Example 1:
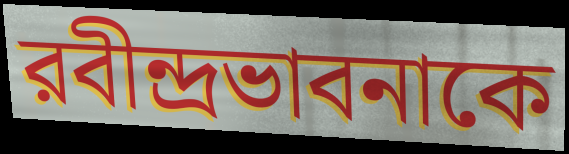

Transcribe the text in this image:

রবীন্দ্রভাবনাকে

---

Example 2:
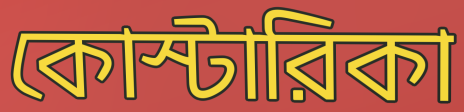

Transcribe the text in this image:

কোস্টারিকা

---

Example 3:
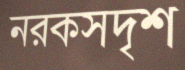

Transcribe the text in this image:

নরকসদৃশ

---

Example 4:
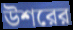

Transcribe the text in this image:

উশরের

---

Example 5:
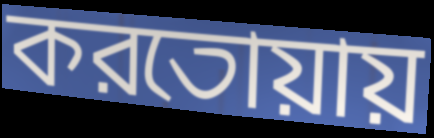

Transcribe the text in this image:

করতোয়ায়